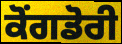
ਕੋਂਗਡੋਰੀ